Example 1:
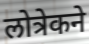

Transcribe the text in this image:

लोत्रेकने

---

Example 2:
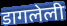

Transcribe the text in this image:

डागलेली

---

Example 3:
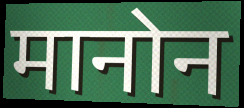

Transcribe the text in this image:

मानोन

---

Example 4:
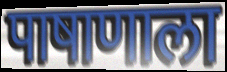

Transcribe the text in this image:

पाषाणाला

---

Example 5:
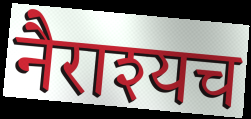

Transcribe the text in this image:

नैराश्यच